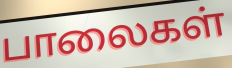
பாலைகள்